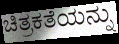
ಚಿತ್ರಕತೆಯನ್ನು